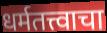
धर्मतत्त्वाचा